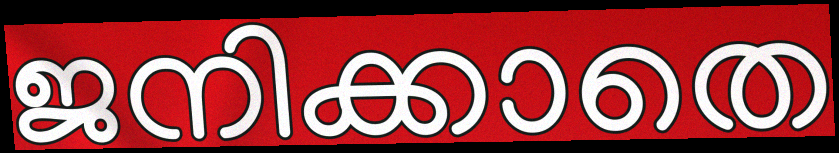
ജനിക്കാതെ